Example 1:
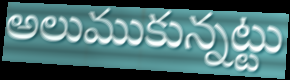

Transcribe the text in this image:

అలుముకున్నట్టు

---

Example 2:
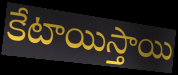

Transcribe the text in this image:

కేటాయిస్తాయి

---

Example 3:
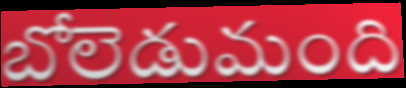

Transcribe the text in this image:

బోలెడుమంది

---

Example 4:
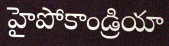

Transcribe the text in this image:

హైపోకాండ్రియా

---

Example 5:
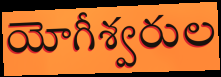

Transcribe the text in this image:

యోగీశ్వరుల